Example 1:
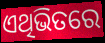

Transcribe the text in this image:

ଏଥିଭିତରେ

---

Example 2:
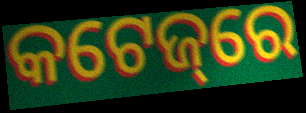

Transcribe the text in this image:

କଟେଜ୍‌ରେ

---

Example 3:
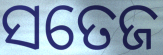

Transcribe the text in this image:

ସତେଜ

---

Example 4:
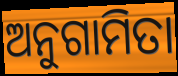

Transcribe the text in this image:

ଅନୁଗାମିତା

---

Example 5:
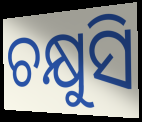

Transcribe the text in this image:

ଚକ୍ଷୁସି